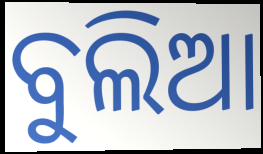
ବୁଲିଆ